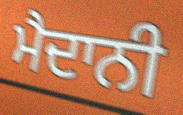
ਮੈਦਾਨੀ